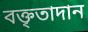
বক্তৃতাদান